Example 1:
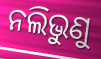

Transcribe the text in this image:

ନଲିଭୁଣୁ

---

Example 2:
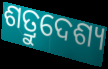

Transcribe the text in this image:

ଶତ୍ରୁଦେଶ୍ୟ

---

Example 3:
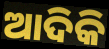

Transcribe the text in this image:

ଆଦିକି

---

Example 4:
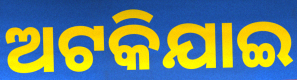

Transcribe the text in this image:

ଅଟକିଯାଇ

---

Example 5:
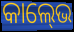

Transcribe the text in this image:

କାଲ୍‍ଭେ